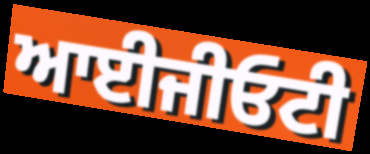
ਆਈਜੀਓਟੀ